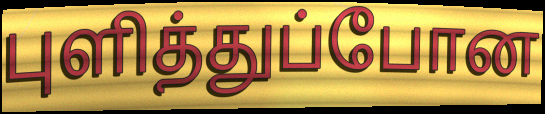
புளித்துப்போன